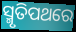
ସ୍ମୃତିପଥରେ